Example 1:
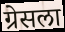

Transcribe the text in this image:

ग्रेसला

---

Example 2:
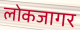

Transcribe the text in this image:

लोकजागर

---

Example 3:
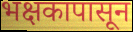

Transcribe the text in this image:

भक्षकापासून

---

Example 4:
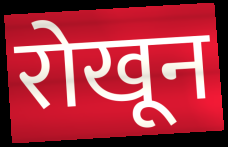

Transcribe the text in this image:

रोखून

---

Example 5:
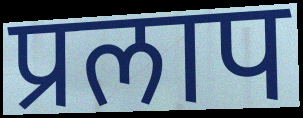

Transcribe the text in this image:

प्रलाप